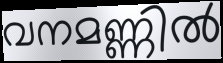
വനമണ്ണിൽ